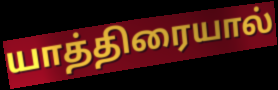
யாத்திரையால்